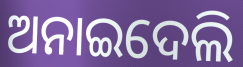
ଅନାଇଦେଲି